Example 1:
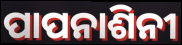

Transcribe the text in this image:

ପାପନାଶିନୀ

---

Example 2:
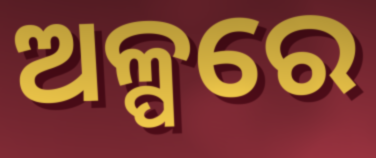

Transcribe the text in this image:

ଅଳ୍ପରେ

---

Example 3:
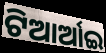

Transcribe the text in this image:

ଟିଆର୍ଆଇ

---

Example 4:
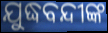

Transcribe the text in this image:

ଯୁଦ୍ଧବନ୍ଦୀଙ୍କ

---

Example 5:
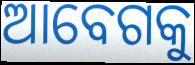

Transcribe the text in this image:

ଆବେଗକୁ